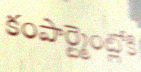
కంపార్ట్మెంట్లోకి